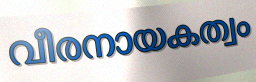
വീരനായകത്വം